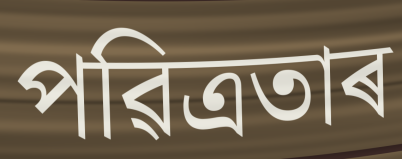
পৱিত্ৰতাৰ